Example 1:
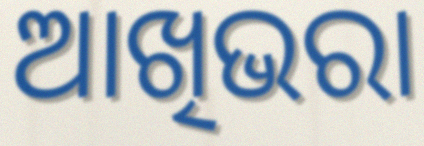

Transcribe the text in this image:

ଆଖିଭରା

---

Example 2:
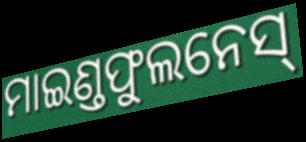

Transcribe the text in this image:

ମାଇଣ୍ଡଫୁଲନେସ୍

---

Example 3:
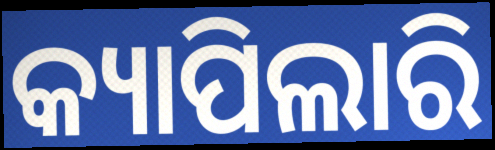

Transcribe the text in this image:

କ୍ୟାପିଲାରି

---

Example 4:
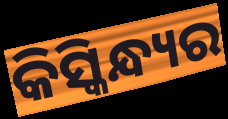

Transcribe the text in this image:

କିସ୍କିନ୍ଧ୍ୟର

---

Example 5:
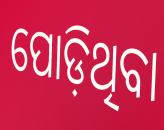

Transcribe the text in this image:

ପୋଡ଼ିଥିବା